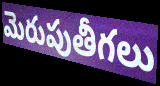
మెరుపుతీగలు